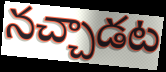
నచ్చాడట